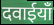
दवाईयाँ